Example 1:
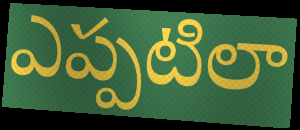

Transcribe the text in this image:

ఎప్పటిలా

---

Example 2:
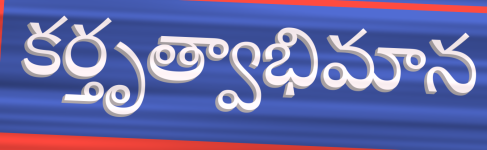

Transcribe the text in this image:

కర్తృత్వాభిమాన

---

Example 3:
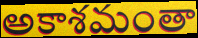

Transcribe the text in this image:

అకాశమంతా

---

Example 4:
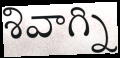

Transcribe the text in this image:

శివాగ్ని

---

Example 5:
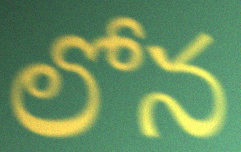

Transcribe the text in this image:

లోన